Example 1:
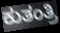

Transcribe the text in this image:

ಕುತಂತ್ರಿ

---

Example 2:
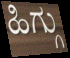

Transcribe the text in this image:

ಹಿಗ್ಗು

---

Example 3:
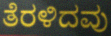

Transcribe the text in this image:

ತೆರಳಿದವು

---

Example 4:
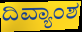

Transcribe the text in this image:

ದಿವ್ಯಾಂಶ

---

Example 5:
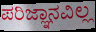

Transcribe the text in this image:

ಪರಿಜ್ಞಾನವಿಲ್ಲ